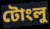
টোংলু